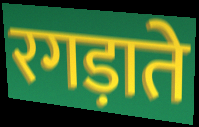
रगड़ाते